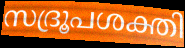
സദ്രൂപശക്തി